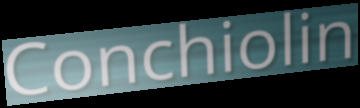
Conchiolin